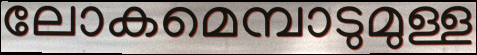
ലോകമെമ്പാടുമുള്ള